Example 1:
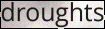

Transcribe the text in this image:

droughts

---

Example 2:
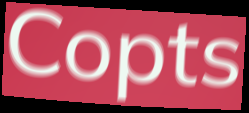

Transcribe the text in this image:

Copts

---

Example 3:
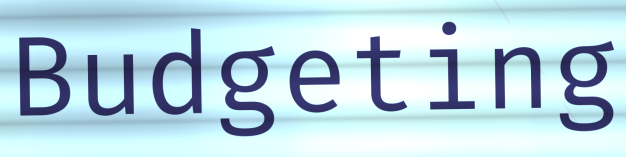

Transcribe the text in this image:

Budgeting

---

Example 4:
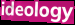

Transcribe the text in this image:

ideology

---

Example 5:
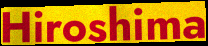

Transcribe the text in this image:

Hiroshima